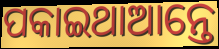
ପକାଇଥାଆନ୍ତେ